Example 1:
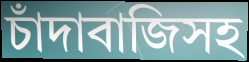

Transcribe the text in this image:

চাঁদাবাজিসহ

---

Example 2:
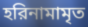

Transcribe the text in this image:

হরিনামামৃত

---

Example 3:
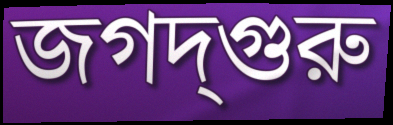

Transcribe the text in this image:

জগদ্‌গুরু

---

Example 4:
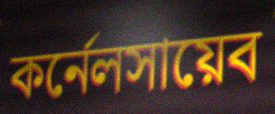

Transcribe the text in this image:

কর্নেলসায়েব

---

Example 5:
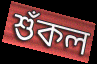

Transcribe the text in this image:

শুঁকল